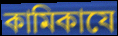
কামিকাযে